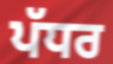
ਪੱਧਰ